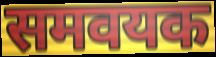
समवयक